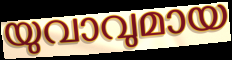
യുവാവുമായ